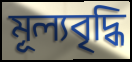
মূল্যবৃদ্ধি